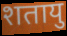
शतायु